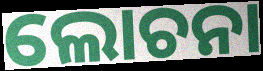
ଲୋଚନା